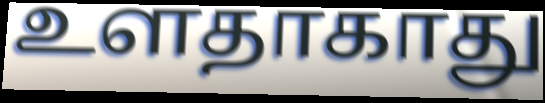
உளதாகாது